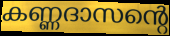
കണ്ണദാസന്റെ